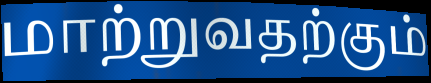
மாற்றுவதற்கும்